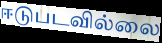
ஈடுபடவில்லை